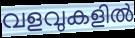
വളവുകളിൽ